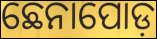
ଛେନାପୋଡ଼